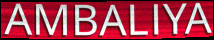
AMBALIYA